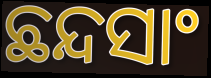
ଛନ୍ଦସାଂ